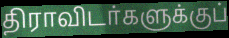
திராவிடர்களுக்குப்